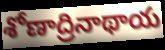
శోణాద్రినాథాయ